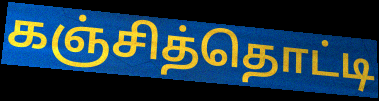
கஞ்சித்தொட்டி